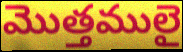
మొత్తములై